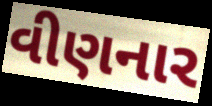
વીણનાર